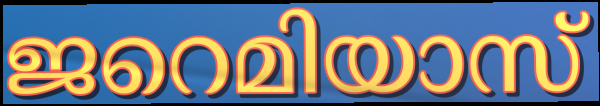
ജറെമിയാസ്